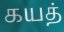
கயத்